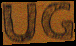
UG